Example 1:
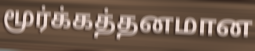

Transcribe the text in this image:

மூர்க்கத்தனமான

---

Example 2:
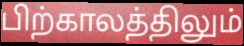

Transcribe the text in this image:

பிற்காலத்திலும்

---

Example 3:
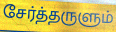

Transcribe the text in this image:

சேர்த்தருளும்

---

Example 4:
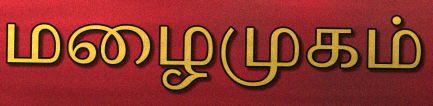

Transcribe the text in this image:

மழைமுகம்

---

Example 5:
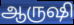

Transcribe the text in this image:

ஆருஷி